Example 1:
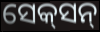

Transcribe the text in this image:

ସେକ୍‌ସନ୍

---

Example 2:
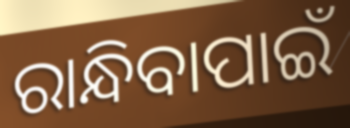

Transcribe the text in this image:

ରାନ୍ଧିବାପାଇଁ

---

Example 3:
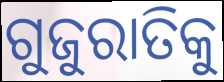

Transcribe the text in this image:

ଗୁଜୁରାତିକୁ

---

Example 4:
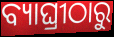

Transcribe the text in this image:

ବ୍ୟାଘ୍ରୀଠାରୁ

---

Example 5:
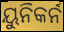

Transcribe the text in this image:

ୟୁନିକର୍ନ